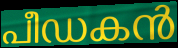
പീഡകൻ